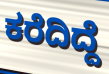
ಕರೆದಿದ್ದೆ